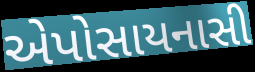
એપોસાયનાસી